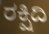
ರಕ್ಷಿದಿ